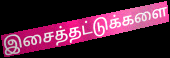
இசைத்தட்டுக்களை